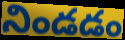
నిండడం